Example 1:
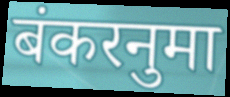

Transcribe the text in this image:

बंकरनुमा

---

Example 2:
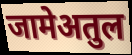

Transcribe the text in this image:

जामेअतुल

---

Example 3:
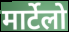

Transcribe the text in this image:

मार्टेलो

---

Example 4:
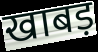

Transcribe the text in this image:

खाबड़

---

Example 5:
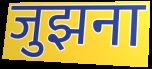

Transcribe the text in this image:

जुझना